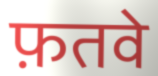
फ़तवे